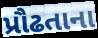
પ્રૌઢતાના